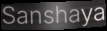
Sanshaya